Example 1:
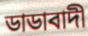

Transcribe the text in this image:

ডাডাবাদী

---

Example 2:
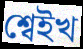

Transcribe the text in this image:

শ্বেইখ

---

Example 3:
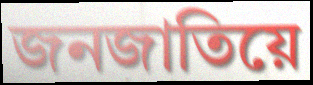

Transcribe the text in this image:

জনজাতিয়ে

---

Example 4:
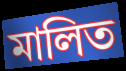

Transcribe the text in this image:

মালিত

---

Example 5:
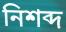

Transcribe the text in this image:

নিশব্দ